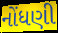
નોંધણી